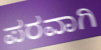
ಪರವಾಗಿ